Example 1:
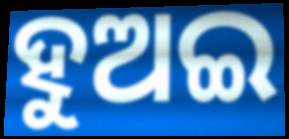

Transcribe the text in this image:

ହୁଅଇ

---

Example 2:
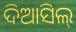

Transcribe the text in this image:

ଦିଆସିଲ୍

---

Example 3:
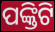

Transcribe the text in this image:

ପଙ୍କ୍ତିଟି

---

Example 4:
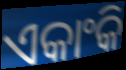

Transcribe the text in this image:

ଏକାଂକି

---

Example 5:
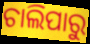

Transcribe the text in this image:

ଚାଲିପାରୁ